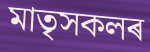
মাতৃসকলৰ